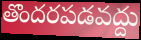
తొందరపడవద్దు